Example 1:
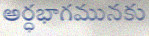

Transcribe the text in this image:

అర్ధభాగమునకు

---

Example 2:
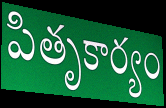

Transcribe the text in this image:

పితృకార్యం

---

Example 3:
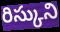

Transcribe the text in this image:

రిస్కుని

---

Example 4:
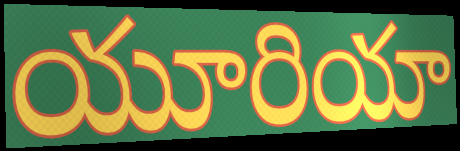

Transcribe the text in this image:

యూరియా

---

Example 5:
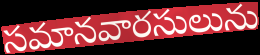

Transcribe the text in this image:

సమానవారసులును